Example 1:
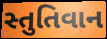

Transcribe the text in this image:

સ્તુતિવાન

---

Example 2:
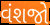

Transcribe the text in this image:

વંશજો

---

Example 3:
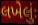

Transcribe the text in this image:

લખેલુંઃ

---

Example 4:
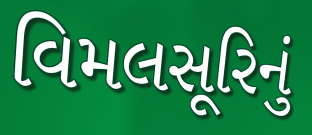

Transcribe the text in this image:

વિમલસૂરિનું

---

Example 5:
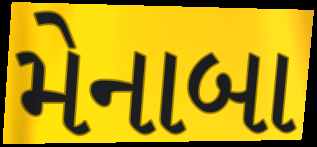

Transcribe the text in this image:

મેનાબા